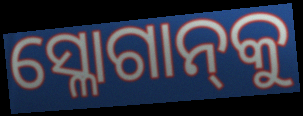
ସ୍ଳୋଗାନ୍‌କୁ